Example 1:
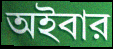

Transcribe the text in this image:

অইবার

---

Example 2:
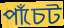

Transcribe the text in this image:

পাঁচেট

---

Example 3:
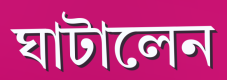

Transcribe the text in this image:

ঘাটালেন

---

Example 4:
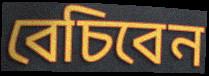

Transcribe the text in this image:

বেচিবেন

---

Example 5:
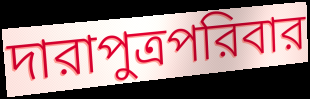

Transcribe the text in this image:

দারাপুত্রপরিবার